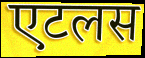
एटलस